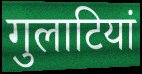
गुलाटियां